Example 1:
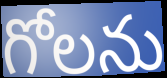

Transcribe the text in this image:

గోలను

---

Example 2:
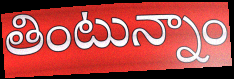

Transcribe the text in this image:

తింటున్నాం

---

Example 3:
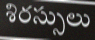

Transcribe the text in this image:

శిరస్సులు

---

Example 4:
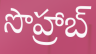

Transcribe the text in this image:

సొహ్రాబ్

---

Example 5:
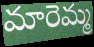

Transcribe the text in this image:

మారెమ్మ